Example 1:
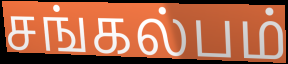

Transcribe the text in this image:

சங்கல்பம்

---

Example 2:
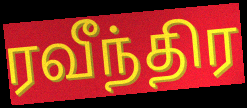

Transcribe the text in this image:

ரவீந்திர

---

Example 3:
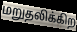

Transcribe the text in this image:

மறுதலிக்கிற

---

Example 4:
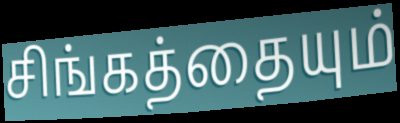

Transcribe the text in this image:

சிங்கத்தையும்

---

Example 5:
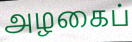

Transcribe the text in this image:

அழகைப்